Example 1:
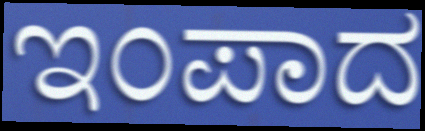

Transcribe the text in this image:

ಇಂಪಾದ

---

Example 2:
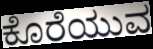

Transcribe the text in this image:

ಕೊರೆಯುವ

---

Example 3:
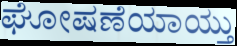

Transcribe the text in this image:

ಘೋಷಣೆಯಾಯ್ತು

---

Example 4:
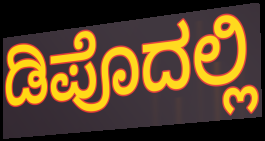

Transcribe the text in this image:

ಡಿಪೊದಲ್ಲಿ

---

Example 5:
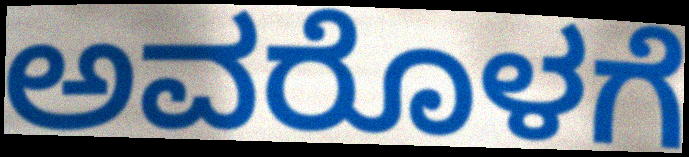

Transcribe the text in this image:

ಅವರೊಳಗೆ